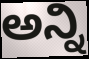
ಅನ್ನಿ